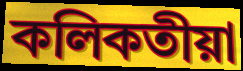
কলিকতীয়া